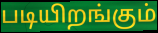
படியிறங்கும்